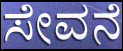
ಸೇವನೆ